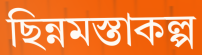
ছিন্নমস্তাকল্প